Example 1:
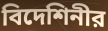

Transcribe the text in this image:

বিদেশিনীর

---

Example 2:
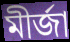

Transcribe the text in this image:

মীর্জা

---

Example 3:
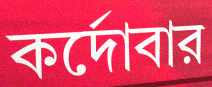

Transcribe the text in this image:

কর্দোবার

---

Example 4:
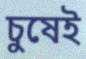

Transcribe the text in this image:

চুষেই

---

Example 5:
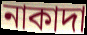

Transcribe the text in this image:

নাকাদা